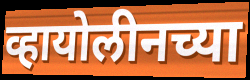
व्हायोलीनच्या